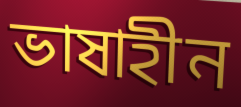
ভাষাহীন